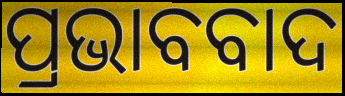
ପ୍ରଭାବବାଦ